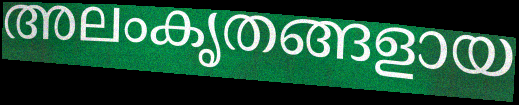
അലംകൃതങ്ങളായ